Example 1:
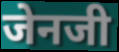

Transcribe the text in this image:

जेनजी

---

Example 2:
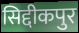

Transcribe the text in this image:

सिद्दीकपुर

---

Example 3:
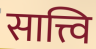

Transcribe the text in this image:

सात्त्वि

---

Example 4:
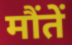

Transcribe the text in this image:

मौंतें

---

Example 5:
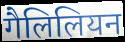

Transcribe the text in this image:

गैलिलियन